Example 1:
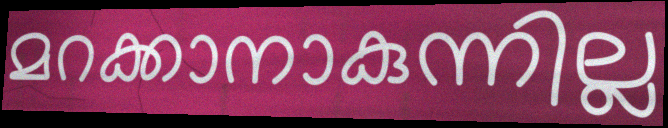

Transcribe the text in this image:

മറക്കാനാകുന്നില്ല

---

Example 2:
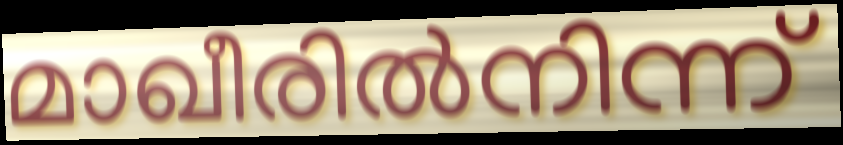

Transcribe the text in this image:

മാഖീരിൽനിന്ന്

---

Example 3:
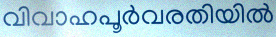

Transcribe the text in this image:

വിവാഹപൂർവരതിയിൽ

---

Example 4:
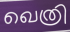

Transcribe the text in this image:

ഖെത്രി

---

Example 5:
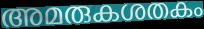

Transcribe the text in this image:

അമരുകശതകം